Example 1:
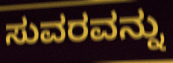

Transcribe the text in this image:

ಸುವರವನ್ನು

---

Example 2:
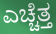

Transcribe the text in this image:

ಎಚ್ಚೆತ್ತ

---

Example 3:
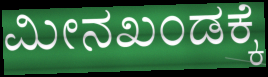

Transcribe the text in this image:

ಮೀನಖಂಡಕ್ಕೆ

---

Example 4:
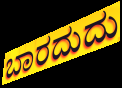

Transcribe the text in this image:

ಬಾರದುದು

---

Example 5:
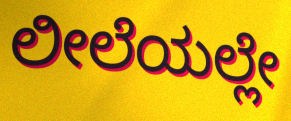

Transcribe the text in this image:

ಲೀಲೆಯಲ್ಲೇ